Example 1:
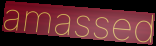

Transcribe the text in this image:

amassed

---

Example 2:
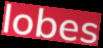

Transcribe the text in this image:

lobes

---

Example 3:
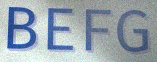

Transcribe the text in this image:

BEFG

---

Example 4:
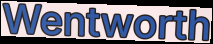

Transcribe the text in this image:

Wentworth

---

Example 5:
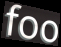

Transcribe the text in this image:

foo